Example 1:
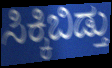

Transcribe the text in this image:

ಸಿಕ್ಕಿಬಿಡ್ತು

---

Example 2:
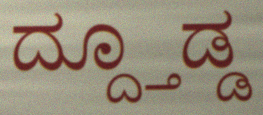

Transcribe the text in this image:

ದ್ದ್ತೂಡ್ಡ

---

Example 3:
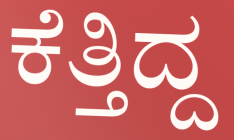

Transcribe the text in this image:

ಕೆತ್ತಿದ್ದ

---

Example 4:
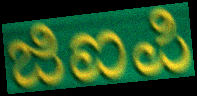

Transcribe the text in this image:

ಜಿಐಪಿ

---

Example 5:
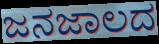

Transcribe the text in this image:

ಜನಜಾಲದ